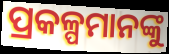
ପ୍ରକଳ୍ପମାନଙ୍କୁ